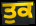
ਤੁਕ